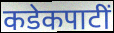
कडेकपाटीं